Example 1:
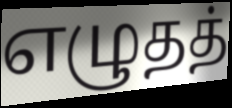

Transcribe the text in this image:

எழுதத்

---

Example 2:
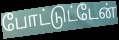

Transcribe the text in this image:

போட்டுட்டேன்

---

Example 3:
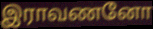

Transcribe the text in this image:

இராவணனோ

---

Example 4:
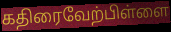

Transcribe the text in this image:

கதிரைவேற்பிள்ளை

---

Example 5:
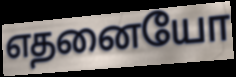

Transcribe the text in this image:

எதனையோ